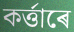
কৰ্ত্তাৰে